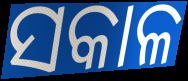
ସକାଳ